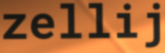
zellij